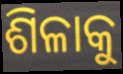
ଶିଳାକୁ